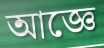
আজ্ঞে